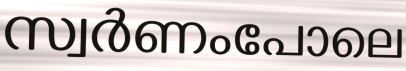
സ്വർണംപോലെ